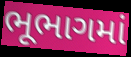
ભૂભાગમાં